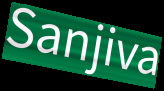
Sanjiva